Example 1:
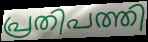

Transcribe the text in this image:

പ്രതിപത്തി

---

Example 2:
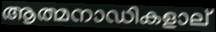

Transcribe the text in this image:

ആത്മനാഡികളാല്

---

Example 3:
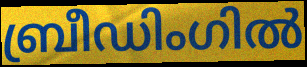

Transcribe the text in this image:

ബ്രീഡിംഗിൽ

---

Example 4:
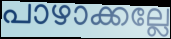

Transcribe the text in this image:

പാഴാക്കല്ലേ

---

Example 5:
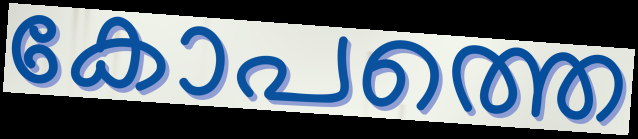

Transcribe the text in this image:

കോപത്തെ